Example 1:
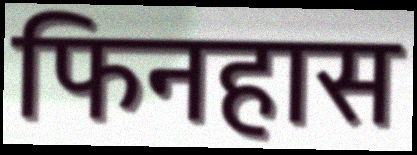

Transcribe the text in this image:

फिनहास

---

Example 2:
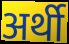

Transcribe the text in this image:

अर्थी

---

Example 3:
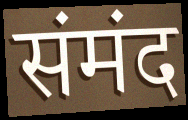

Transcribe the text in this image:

संमंद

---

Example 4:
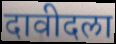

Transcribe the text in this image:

दावीदला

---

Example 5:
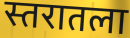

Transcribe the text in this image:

स्तरातला